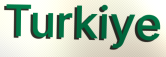
Turkiye